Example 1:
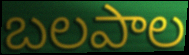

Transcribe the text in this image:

బలపాల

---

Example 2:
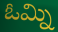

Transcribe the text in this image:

ఓమ్ని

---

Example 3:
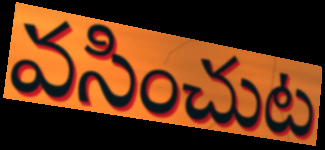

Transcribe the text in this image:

వసించుట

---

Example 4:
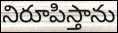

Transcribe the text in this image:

నిరూపిస్తాను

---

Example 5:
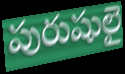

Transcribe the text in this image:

పురుషులై